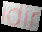
idir